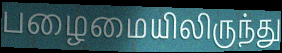
பழைமையிலிருந்து